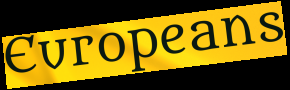
Europeans